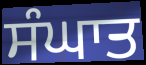
ਸੰਘਾਤ